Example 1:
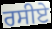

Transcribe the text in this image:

ਰਸੀਏ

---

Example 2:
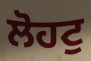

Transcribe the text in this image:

ਲੋਹਟੁ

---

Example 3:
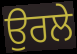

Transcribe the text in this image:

ਉਰਲੇ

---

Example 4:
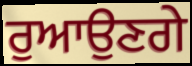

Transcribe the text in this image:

ਰੁਆਉਣਗੇ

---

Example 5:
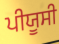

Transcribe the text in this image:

ਪੀਯੂਸੀ